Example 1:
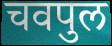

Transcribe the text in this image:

चवपुल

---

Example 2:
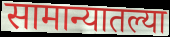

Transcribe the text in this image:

सामान्यातल्या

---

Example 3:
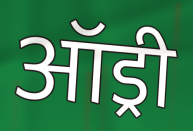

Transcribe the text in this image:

ऑड्री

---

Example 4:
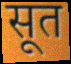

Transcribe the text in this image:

सूत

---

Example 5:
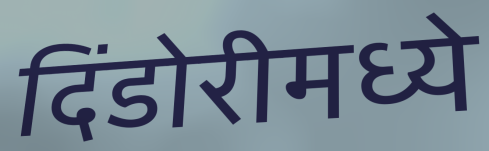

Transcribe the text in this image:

दिंडोरीमध्ये